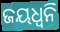
ଜୟଧ୍ୱନି